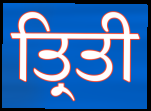
ਤ੍ਰਿਤੀ